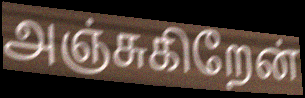
அஞ்சுகிறேன்